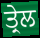
ਤ੍ਰੇਲ